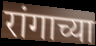
रांगाच्या